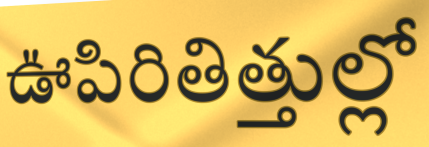
ఊపిరితిత్తుల్లో